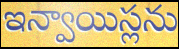
ఇన్వాయిస్లను